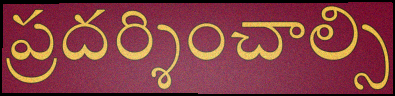
ప్రదర్శించాల్సి